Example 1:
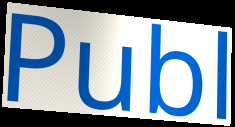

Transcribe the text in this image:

Publ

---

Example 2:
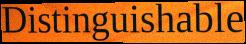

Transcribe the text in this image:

Distinguishable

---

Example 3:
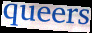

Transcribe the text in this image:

queers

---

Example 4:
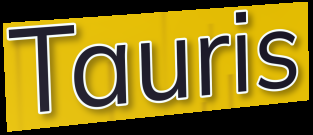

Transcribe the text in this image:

Tauris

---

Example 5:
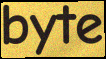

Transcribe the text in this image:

byte